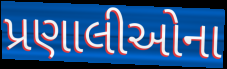
પ્રણાલીઓના